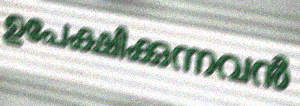
ഉപേക്ഷിക്കുന്നവൻ